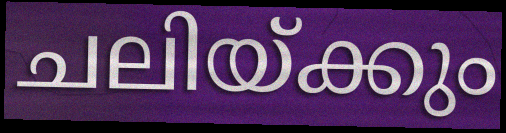
ചലിയ്ക്കും